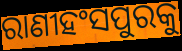
ରାଣୀହଂସପୁରକୁ